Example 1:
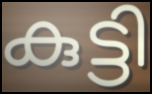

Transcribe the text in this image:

കുട്ടി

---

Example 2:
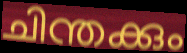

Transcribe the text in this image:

ചിന്തക്കും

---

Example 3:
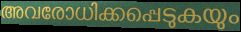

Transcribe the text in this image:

അവരോധിക്കപ്പെടുകയും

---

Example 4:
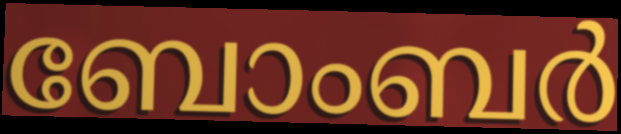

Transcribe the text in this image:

ബോംബർ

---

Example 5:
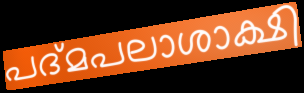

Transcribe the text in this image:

പദ്മപലാശാക്ഷി